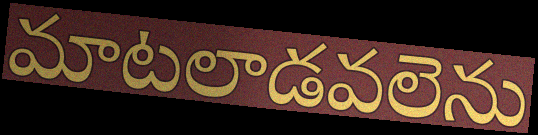
మాటలాడవలెను